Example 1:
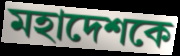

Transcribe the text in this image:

মহাদেশকে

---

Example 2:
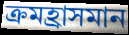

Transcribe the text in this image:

ক্রমহ্রাসমান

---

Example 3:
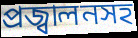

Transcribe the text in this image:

প্রজ্বালনসহ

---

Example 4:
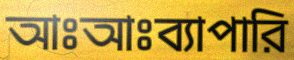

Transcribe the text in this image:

আঃআঃব্যাপারি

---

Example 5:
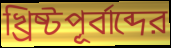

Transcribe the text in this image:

খ্রিষ্টপূর্বাব্দের